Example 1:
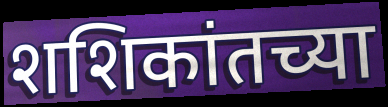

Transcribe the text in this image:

शशिकांतच्या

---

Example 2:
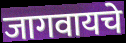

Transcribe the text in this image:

जागवायचे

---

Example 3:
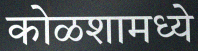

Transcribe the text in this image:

कोळशामध्ये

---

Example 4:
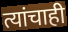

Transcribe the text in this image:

त्यांचाही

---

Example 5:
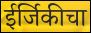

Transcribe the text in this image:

ईर्जिकीचा